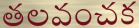
తలవంచక